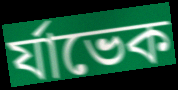
র্যাভেক